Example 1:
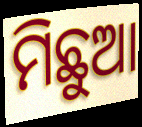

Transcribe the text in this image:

ମିଛୁଆ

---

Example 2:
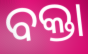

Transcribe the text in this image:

ବକ୍ତା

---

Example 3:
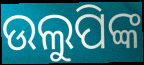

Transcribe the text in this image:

ଉଲୁପିଙ୍କ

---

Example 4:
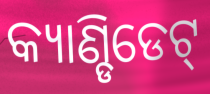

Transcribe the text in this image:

କ୍ୟାଣ୍ଡିଡେଟ୍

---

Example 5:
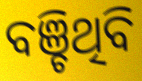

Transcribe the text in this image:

ବଞ୍ଚିଥିବି